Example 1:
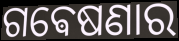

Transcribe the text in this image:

ଗଵେଷଣାର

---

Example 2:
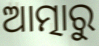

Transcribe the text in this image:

ଆତ୍ମାରୁ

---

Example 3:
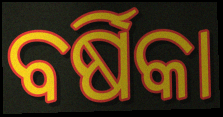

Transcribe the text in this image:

ବର୍ଷିକା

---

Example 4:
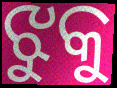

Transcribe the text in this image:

ଝୁକୁ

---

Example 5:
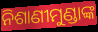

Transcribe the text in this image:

ନିଶାଣୀମୁଣ୍ଡାଙ୍କ